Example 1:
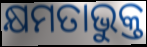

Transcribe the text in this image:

କ୍ଷମତାଭୁକ୍ତ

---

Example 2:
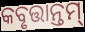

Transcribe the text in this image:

କବୃତ୍ତାନ୍ତମ୍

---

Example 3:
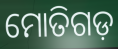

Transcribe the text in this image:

ମୋତିଗଡ଼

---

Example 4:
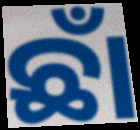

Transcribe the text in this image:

ଛାଁ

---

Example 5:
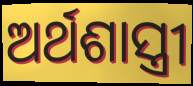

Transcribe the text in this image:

ଅର୍ଥଶାସ୍ତ୍ରୀ